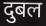
दुबल